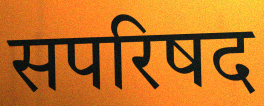
सपरिषद